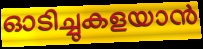
ഓടിച്ചുകളയാൻ